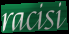
racisi